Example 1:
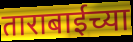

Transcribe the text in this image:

ताराबाईच्या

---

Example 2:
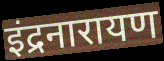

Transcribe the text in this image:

इंद्रनारायण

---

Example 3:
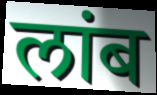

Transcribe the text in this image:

लांब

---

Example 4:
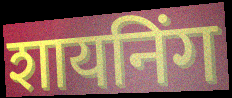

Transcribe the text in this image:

शायनिंग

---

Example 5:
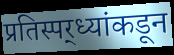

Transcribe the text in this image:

प्रतिस्पर्ध्यांकडून